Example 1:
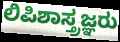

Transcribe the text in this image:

ಲಿಪಿಶಾಸ್ತ್ರಜ್ಞರು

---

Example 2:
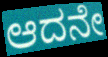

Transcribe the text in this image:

ಆದನೇ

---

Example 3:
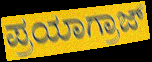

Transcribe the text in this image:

ಪ್ರಯಾಗ್ರಾಜ್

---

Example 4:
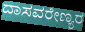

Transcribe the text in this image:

ದಾಸವರೇಣ್ಯರ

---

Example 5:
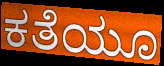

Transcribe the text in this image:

ಕತೆಯೂ